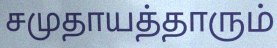
சமுதாயத்தாரும்